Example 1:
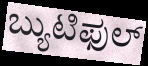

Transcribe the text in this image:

ಬ್ಯುಟಿಫುಲ್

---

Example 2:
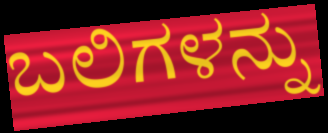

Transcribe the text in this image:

ಬಲಿಗಳನ್ನು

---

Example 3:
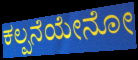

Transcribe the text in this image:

ಕಲ್ಪನೆಯೇನೋ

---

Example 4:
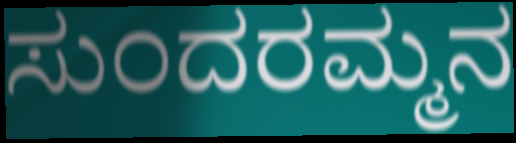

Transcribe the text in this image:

ಸುಂದರಮ್ಮನ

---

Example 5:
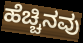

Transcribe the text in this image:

ಹೆಚ್ಚಿನವು